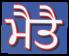
ਮੈਤੈ